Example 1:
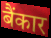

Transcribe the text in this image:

बैंकार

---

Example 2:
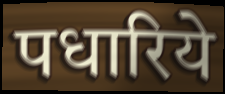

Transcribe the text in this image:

पधारिये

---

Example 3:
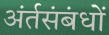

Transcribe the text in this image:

अंर्तसंबंधों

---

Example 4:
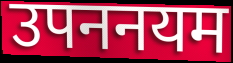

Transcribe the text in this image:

उपननयम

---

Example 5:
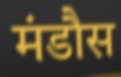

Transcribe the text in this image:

मंडौस